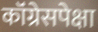
कॉंग्रेसपेक्षा